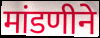
मांडणीने